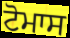
ਟੋਮਾਸ